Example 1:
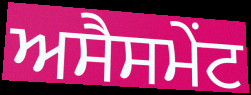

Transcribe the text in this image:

ਅਸੈਸਮੇਂਟ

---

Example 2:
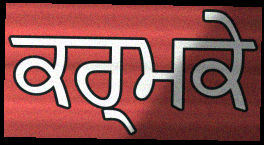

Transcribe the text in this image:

ਕਰ੍ਮਕੇ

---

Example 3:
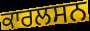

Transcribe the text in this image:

ਕਾਰਲਸਨ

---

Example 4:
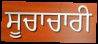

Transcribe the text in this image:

ਸੂਚਾਚਾਰੀ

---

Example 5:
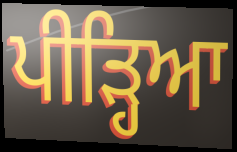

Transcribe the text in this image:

ਪੀੜ੍ਹਿਆ